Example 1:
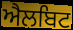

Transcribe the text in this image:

ਐਲਬਿਟ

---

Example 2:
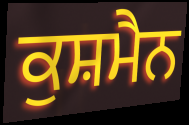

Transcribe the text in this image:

ਕੁਸ਼ਮੈਨ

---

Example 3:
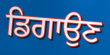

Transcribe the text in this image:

ਡਿਗਾਉਣ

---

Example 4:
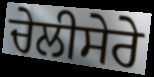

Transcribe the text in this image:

ਚੇਲੀਸੇਰੇ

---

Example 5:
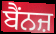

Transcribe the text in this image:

ਬੈਂਨਜ਼